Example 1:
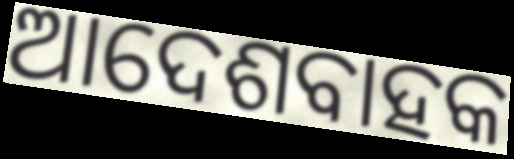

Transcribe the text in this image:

ଆଦେଶବାହକ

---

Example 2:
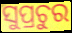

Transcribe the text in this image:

ସୁପ୍ରଚୁର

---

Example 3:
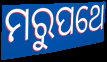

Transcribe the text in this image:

ମରୁପଥେ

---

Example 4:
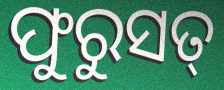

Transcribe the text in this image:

ଫୁରୁସତ୍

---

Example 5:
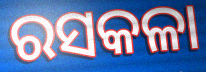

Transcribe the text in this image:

ରସକଳା